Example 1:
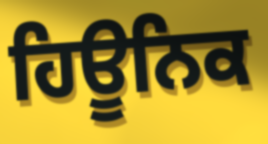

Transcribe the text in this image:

ਹਿਊਨਿਕ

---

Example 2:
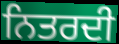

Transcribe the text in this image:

ਨਿਤਰਦੀ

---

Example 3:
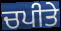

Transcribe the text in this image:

ਚਪੀਤੇ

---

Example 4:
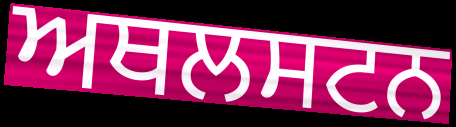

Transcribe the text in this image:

ਅਥਲਸਟਨ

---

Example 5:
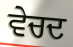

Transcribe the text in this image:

ਵੇਚਦ